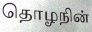
தொழநின்